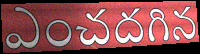
ఎంచదగిన